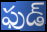
ఫుడ్